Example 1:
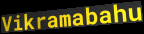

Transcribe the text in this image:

Vikramabahu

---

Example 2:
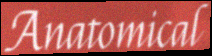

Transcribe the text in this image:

Anatomical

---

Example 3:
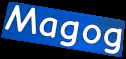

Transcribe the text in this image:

Magog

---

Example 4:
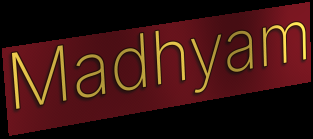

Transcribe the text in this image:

Madhyam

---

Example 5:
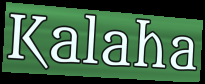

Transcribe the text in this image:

Kalaha